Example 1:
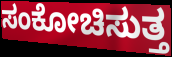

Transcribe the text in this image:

ಸಂಕೋಚಿಸುತ್ತ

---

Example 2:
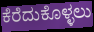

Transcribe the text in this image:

ಕೆರೆದುಕೊಳ್ಳಲು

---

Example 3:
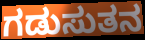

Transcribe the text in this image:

ಗಡುಸುತನ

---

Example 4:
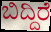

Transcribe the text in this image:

ಬಿದ್ದಿರೆ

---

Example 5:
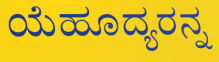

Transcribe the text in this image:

ಯೆಹೂದ್ಯರನ್ನ